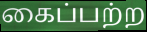
கைப்பற்ற